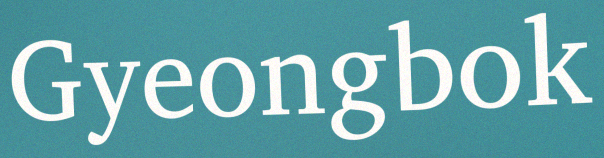
Gyeongbok